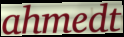
ahmedt